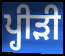
ਪ੍ਹੀੜੀ